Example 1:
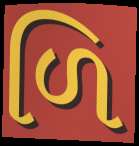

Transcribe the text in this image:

ળિ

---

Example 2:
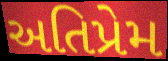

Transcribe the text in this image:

અતિપ્રેમ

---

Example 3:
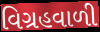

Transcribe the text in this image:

વિગ્રહવાળી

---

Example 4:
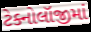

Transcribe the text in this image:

ટેક્નોલૉજીમાં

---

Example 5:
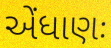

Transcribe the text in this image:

એંધાણઃ